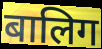
बालिग